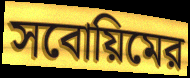
সবোয়িমের